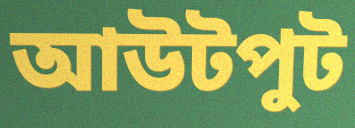
আউটপুট